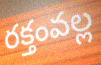
రక్తంవల్ల